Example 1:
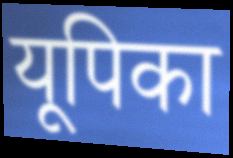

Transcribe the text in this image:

यूपिका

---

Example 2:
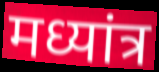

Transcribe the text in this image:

मध्यांत्र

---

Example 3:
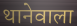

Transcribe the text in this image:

थानेवाला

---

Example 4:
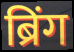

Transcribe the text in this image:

ब्रिंग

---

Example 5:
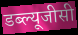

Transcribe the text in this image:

डब्ल्यूजीसी